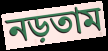
নড়তাম